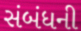
સંબંધની